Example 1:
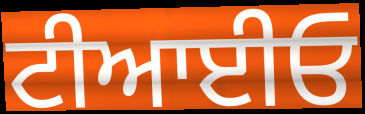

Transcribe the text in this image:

ਟੀਆਈਓ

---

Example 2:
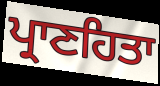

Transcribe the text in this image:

ਪ੍ਰਾਣਹਿਤਾ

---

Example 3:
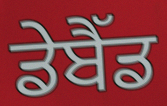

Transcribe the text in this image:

ਡੇਬੈੱਡ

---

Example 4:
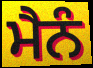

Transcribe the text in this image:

ਮੈਨੰ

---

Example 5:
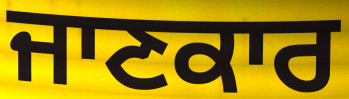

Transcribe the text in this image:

ਜਾਣਕਾਰ